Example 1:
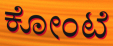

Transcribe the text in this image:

ಕೋಂಟೆ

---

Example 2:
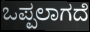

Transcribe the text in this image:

ಒಪ್ಪಲಾಗದೆ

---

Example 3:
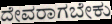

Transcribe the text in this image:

ದೇವರಾಗಬೇಕು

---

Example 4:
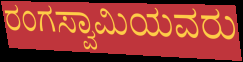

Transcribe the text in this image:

ರಂಗಸ್ವಾಮಿಯವರು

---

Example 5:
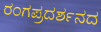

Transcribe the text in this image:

ರಂಗಪ್ರದರ್ಶನದ